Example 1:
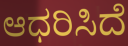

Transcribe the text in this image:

ಆಧರಿಸಿದೆ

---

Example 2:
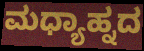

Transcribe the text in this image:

ಮಧ್ಯಾಹ್ನದ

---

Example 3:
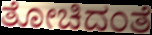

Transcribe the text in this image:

ತೋಚಿದಂತೆ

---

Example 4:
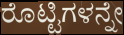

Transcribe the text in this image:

ರೊಟ್ಟಿಗಳನ್ನೇ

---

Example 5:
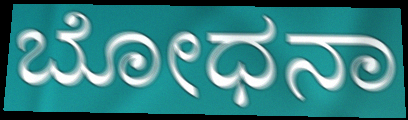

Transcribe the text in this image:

ಬೋಧನಾ